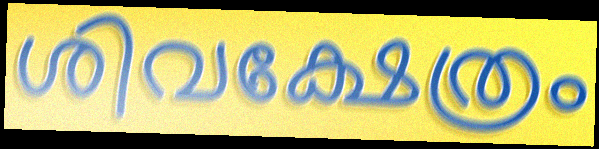
ശിവക്ഷേത്രം